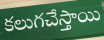
కలుగచేస్తాయి